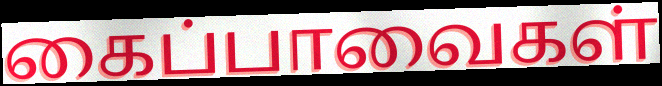
கைப்பாவைகள்